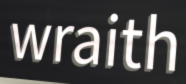
wraith